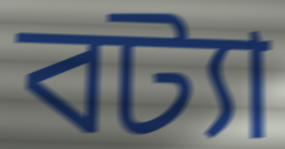
বট্যা